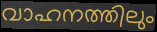
വാഹനത്തിലും